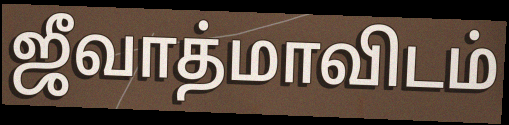
ஜீவாத்மாவிடம்